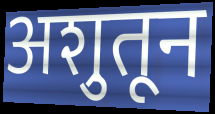
अश्रुतून